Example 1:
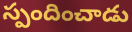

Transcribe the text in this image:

స్పందించాడు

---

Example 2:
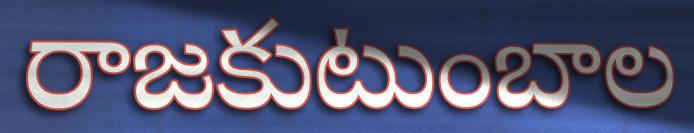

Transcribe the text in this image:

రాజకుటుంబాల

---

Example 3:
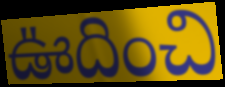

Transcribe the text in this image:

ఊదించి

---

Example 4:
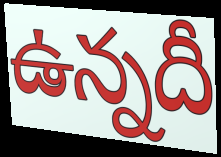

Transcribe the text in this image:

ఉన్నదీ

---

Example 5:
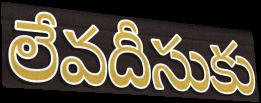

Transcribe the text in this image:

లేవదీసుకు